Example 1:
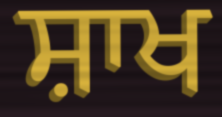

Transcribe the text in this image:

ਸ਼ਾਖ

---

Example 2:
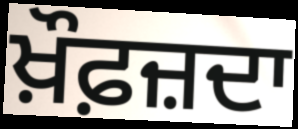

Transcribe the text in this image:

ਖ਼ੌਫ਼ਜ਼ਦਾ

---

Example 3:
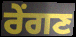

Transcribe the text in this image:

ਰੇਂਗਣ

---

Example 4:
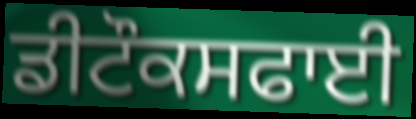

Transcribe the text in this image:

ਡੀਟੌਕਸਫਾਈ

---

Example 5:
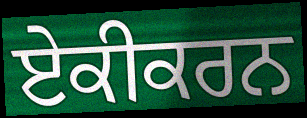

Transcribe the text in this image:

ਏਕੀਕਰਨ